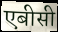
एबीसी